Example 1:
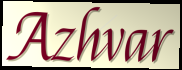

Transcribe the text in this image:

Azhvar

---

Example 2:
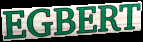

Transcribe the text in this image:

EGBERT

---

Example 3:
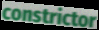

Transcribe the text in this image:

constrictor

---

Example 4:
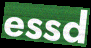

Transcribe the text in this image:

essd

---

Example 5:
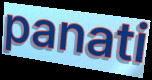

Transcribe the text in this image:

panati